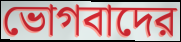
ভোগবাদের